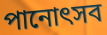
পানোৎসব